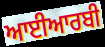
ਆਈਆਰਬੀ